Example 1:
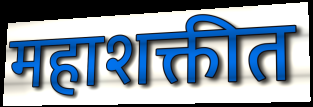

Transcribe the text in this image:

महाशक्तीत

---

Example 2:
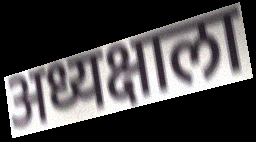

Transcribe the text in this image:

अध्यक्षाला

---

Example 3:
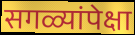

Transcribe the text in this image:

सगळ्यांपेक्षा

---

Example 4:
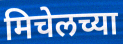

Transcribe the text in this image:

मिचेलच्या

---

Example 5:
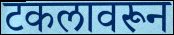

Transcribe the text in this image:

टकलावरून